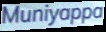
Muniyappa